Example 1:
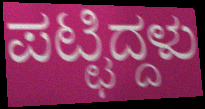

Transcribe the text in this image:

ಪಟ್ಟಿದ್ದಳು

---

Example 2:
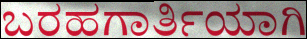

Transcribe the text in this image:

ಬರಹಗಾರ್ತಿಯಾಗಿ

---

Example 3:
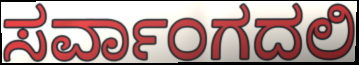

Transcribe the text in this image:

ಸರ್ವಾಂಗದಲಿ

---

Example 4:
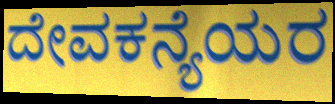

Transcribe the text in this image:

ದೇವಕನ್ಯೆಯರ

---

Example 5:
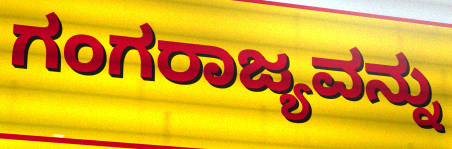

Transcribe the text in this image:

ಗಂಗರಾಜ್ಯವನ್ನು